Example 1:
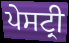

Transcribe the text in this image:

ਪੇਸਟ੍ਰੀ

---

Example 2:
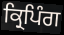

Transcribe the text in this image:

ਕ੍ਰਿਪਿੰਗ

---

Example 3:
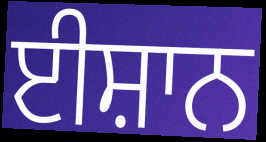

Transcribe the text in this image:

ਈਸ਼ਾਨ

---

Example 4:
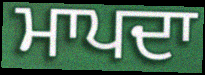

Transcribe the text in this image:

ਮਾਪਦਾ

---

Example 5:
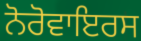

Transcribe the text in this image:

ਨੋਰੋਵਾਇਰਸ